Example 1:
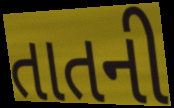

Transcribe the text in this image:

તાતની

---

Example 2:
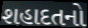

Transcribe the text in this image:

શહાદતનો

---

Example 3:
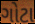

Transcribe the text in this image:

ગોટા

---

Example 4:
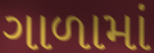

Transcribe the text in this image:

ગાળામાં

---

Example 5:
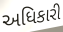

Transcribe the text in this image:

અધિકારી